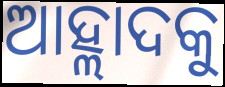
ଆହ୍ଲାଦକୁ